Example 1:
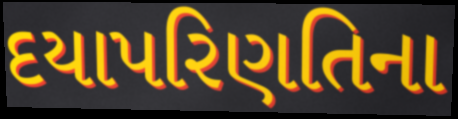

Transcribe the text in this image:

દયાપરિણતિના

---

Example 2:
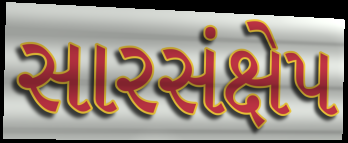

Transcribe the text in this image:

સારસંક્ષેપ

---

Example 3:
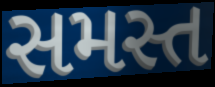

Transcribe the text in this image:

સમસ્ત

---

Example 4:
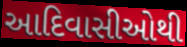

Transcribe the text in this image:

આદિવાસીઓથી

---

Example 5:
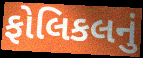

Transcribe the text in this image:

ફોલિકલનું